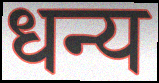
धन्य